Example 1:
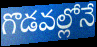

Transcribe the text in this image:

గొడవల్లోనే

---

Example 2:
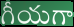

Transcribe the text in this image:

గీయగా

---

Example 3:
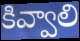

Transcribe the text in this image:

కివ్వాలి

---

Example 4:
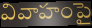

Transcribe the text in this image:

వివాహంపై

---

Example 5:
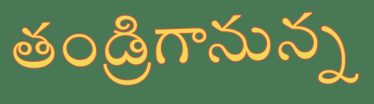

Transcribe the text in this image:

తండ్రిగానున్న